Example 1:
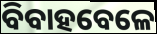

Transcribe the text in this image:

ବିବାହବେଳେ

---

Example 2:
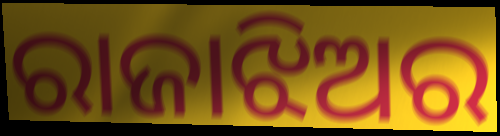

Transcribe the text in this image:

ରାଜାଝିଅର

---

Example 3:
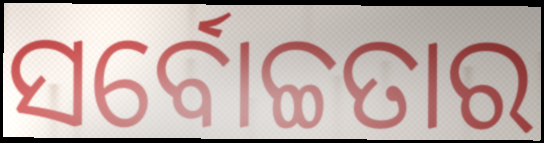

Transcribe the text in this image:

ସର୍ବୋଚ୍ଚତାର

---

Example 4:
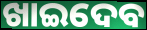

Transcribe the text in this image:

ଖାଇଦେବ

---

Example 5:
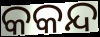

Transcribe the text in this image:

କକନ୍ଦ